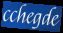
cchegde